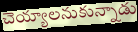
చెయ్యాలనుకున్నాడు